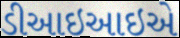
ડીઆઇઆઇએ